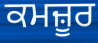
ਕਮਜ਼ੂਰ